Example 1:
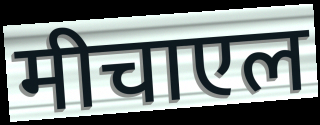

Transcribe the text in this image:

मीचाएल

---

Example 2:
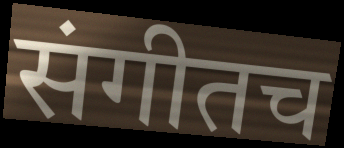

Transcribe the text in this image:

संगीतच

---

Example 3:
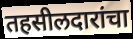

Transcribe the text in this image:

तहसीलदारांचा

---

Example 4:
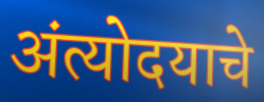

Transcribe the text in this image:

अंत्योदयाचे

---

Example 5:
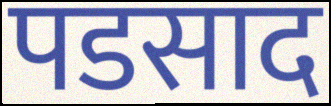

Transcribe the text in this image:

पडसाद